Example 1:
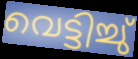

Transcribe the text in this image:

വെട്ടിച്ചു്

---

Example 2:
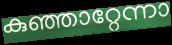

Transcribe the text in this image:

കുഞ്ഞാറ്റേന്നാ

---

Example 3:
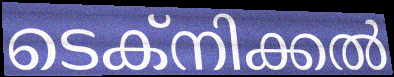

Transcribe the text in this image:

ടെക്നിക്കൽ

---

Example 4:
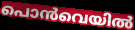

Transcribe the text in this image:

പൊൻവെയിൽ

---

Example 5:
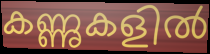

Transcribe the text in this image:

കണ്ണുകളിൽ